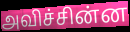
அவிச்சின்ன